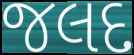
જલદ